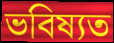
ভবিষ্যত